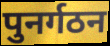
पुनर्गठन